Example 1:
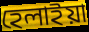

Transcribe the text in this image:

হেলাইয়া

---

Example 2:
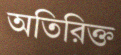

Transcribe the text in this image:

অতিরিক্ত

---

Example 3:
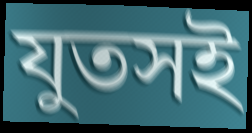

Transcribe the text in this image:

যুতসই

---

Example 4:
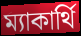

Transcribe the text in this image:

ম্যাকার্থি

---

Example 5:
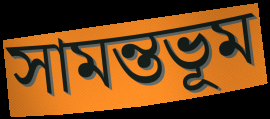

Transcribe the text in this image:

সামন্তভূম